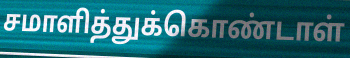
சமாளித்துக்கொண்டாள்